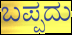
ಬಪ್ಪದು